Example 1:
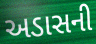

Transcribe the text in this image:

અડાસની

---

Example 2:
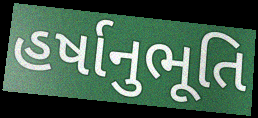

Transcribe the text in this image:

હર્ષાનુભૂતિ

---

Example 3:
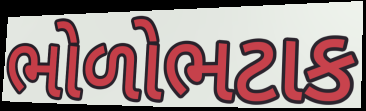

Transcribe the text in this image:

ભોળોભટાક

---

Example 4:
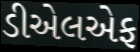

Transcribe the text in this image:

ડીએલએફ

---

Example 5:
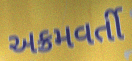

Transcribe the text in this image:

અક્રમવર્તી